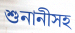
শুনানীসহ